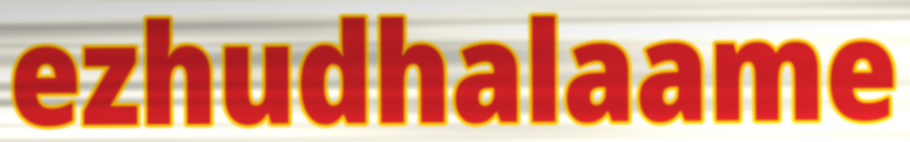
ezhudhalaame